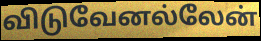
விடுவேனல்லேன்